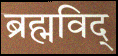
ब्रह्मविद्